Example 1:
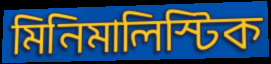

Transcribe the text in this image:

মিনিমালিস্টিক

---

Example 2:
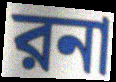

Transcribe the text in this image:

রনা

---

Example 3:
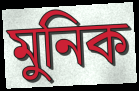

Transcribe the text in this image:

মুনিক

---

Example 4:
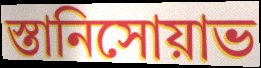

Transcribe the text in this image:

স্তানিসোয়াভ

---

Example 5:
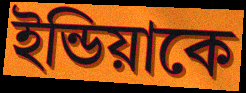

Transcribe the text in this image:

ইন্ডিয়াকে